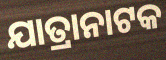
ଯାତ୍ରାନାଟକ